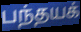
பந்தயக்